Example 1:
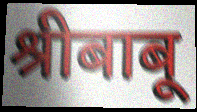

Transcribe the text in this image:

श्रीबाबू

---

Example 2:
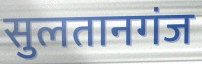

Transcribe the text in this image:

सुलतानगंज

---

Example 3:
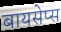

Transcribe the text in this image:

बायसेप्स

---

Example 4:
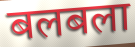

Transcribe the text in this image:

बलबला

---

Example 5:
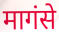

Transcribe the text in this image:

मागंसे